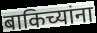
बाकिच्यांना